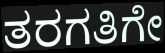
ತರಗತಿಗೇ